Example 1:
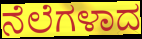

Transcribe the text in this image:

ನೆಲೆಗಳಾದ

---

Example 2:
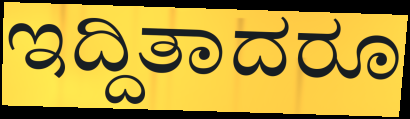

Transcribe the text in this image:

ಇದ್ದಿತಾದರೂ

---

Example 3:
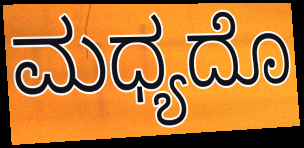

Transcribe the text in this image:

ಮಧ್ಯದೊ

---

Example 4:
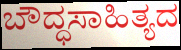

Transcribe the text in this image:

ಬೌದ್ಧಸಾಹಿತ್ಯದ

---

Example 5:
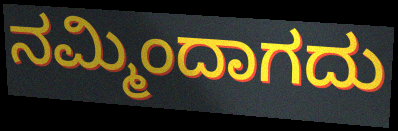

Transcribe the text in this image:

ನಮ್ಮಿಂದಾಗದು